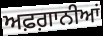
ਅਫ਼ਗ਼ਾਨੀਆਂ